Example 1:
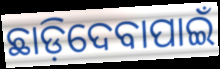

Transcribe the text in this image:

ଛାଡ଼ିଦେବାପାଇଁ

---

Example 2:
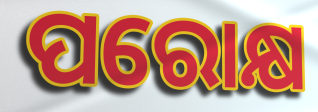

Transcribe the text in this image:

ପରୋକ୍ଷ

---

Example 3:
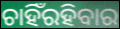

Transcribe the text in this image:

ଚାହିଁରହିବାର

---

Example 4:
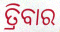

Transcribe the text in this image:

ତ୍ରିବାର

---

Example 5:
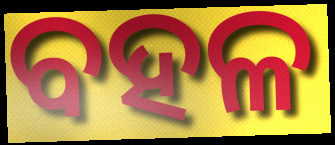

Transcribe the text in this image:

ବହଳ